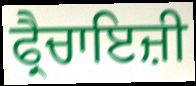
ਫ੍ਰੈਚਾਇਜ਼ੀ